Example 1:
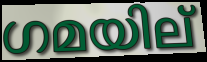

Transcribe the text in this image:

ഗമയില്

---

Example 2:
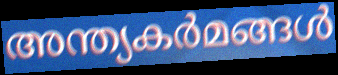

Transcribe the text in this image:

അന്ത്യകർമങ്ങൾ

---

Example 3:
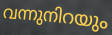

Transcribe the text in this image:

വന്നുനിറയും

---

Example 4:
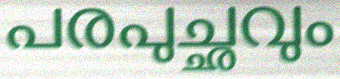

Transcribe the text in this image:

പരപുച്ഛവും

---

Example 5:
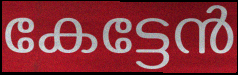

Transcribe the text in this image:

കേട്ടേൻ